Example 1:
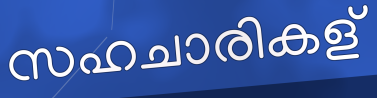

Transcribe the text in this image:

സഹചാരികള്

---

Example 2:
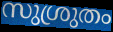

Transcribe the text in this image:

സുശ്രുതം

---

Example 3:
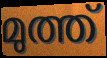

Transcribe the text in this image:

മുത്ത്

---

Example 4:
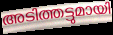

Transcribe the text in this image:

അടിത്തട്ടുമായി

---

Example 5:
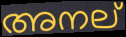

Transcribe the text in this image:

അനല്